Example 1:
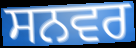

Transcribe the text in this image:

ਸਨਵਰ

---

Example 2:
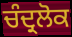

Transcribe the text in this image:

ਚੰਦ੍ਰਲੋਕ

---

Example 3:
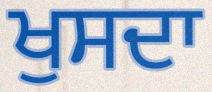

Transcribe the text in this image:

ਖੁਸਦਾ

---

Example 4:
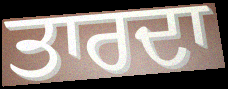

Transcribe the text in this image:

ਤਾਰਦਾ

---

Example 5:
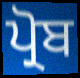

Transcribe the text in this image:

ਪ੍ਰੋਬ